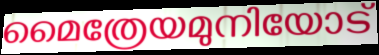
മൈത്രേയമുനിയോട്